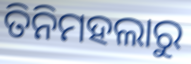
ତିନିମହଲାରୁ